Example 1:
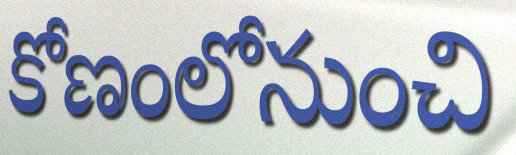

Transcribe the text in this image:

కోణంలోనుంచి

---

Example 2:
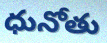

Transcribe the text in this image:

ధునోతు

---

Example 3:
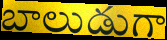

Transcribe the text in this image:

బాలుడుగా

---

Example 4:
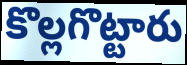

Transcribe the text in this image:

కొల్లగొట్టారు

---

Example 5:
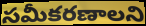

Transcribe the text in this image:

సమీకరణాలని